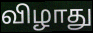
விழாது